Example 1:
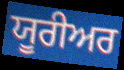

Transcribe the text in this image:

ਯੂਰੀਅਰ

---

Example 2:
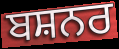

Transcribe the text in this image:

ਬਸ਼ਨਰ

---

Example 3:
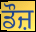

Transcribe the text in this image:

ਡੌਜ਼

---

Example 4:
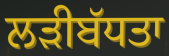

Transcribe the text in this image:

ਲੜੀਬੱਧਤਾ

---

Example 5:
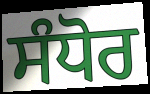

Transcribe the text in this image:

ਸੰਧੋਰ